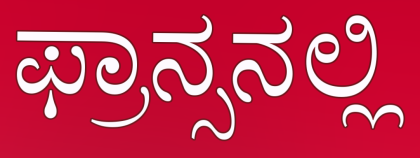
ಫ್ರಾನ್ಸನಲ್ಲಿ